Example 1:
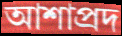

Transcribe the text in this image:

আশাপ্রদ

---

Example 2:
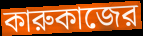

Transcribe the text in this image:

কারুকাজের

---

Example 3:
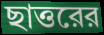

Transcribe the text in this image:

ছাত্তরের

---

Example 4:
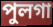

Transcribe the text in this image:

পুলগা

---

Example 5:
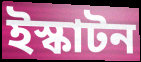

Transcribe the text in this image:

ইস্কাটন